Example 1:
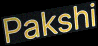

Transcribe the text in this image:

Pakshi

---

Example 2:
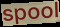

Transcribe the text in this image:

spool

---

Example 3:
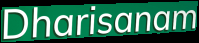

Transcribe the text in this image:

Dharisanam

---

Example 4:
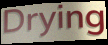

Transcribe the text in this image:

Drying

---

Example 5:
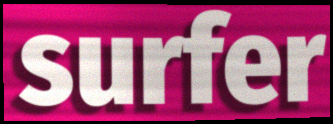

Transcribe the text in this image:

surfer